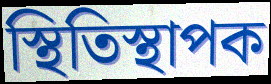
স্থিতিস্থাপক